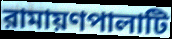
রামায়ণপালাটি